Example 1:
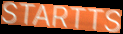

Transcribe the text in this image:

STARTTS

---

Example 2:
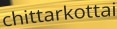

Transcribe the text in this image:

chittarkottai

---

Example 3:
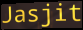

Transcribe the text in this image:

Jasjit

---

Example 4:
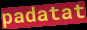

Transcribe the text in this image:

padatat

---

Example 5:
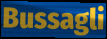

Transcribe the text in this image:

Bussagli